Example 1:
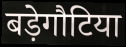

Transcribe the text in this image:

बड़ेगौटिया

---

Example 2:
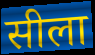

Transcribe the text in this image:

सीला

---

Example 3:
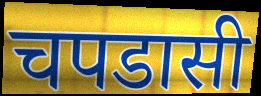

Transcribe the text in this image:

चपडासी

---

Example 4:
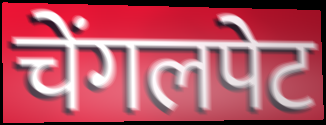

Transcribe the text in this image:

चेंगलपेट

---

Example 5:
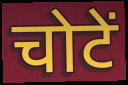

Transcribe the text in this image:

चोटें